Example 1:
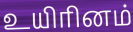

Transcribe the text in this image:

உயிரினம்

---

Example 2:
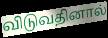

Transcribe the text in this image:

விடுவதினால்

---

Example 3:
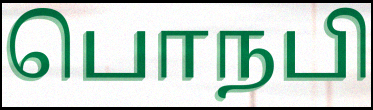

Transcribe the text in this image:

பொநபி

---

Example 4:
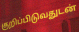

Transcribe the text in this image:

குறிப்பிடுவதுடன்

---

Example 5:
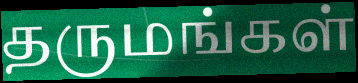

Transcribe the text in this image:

தருமங்கள்